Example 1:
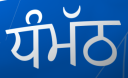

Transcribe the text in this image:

ਧੰਮੱਠ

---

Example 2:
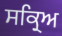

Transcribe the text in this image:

ਸਕ੍ਰਿਅ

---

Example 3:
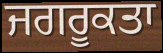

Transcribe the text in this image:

ਜਗਰੂਕਤਾ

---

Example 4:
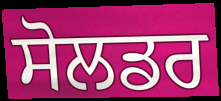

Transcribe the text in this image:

ਸੋਲਡਰ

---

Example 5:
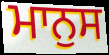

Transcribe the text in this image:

ਮਾਨੁਸ